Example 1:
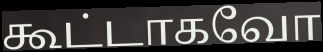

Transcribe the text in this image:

கூட்டாகவோ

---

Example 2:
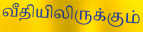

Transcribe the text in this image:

வீதியிலிருக்கும்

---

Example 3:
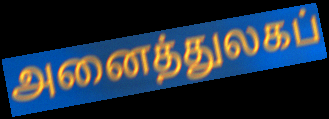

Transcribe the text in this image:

அனைத்துலகப்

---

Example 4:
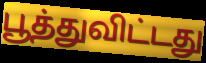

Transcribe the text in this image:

பூத்துவிட்டது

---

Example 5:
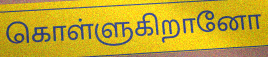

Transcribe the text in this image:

கொள்ளுகிறானோ